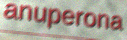
anuperona